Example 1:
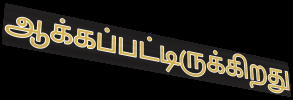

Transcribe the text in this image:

ஆக்கப்பட்டிருக்கிறது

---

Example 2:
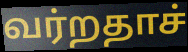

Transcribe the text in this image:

வர்றதாச்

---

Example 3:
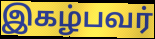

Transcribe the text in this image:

இகழ்பவர்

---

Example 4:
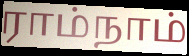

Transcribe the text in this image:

ராம்நாம்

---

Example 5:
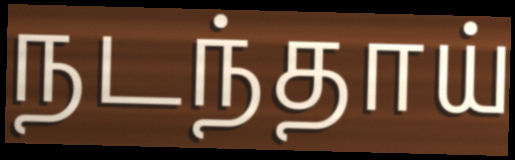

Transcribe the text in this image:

நடந்தாய்